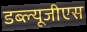
डब्ल्यूजीएस